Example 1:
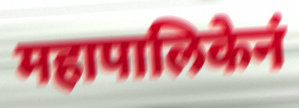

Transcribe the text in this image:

महापालिकेनं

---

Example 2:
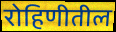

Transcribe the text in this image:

रोहिणीतील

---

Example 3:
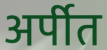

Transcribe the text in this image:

अर्पीत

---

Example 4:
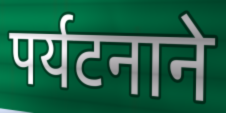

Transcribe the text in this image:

पर्यटनाने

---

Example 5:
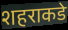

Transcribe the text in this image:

शहराकडे